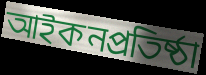
আইকনপ্রতিষ্ঠা